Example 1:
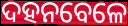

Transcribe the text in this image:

ଦହନବେଳେ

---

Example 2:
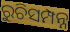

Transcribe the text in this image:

ରୁଚିସମ୍ପନ୍ନ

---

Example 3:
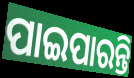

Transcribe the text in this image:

ପାଇପାରନ୍ତି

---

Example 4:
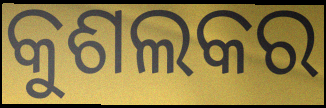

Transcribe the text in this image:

କୁଶଲକର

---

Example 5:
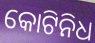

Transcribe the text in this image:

କୋଟିନିଧ